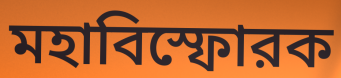
মহাবিস্ফোরক